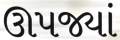
ઊપજ્યાં